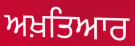
ਅਖ਼ਤਿਆਰ